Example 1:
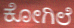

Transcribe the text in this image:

ಕೋಗಿಲೆ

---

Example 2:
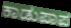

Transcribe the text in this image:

ಕಾಡುಪಾಪ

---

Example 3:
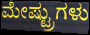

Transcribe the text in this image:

ಮೇಷ್ಟ್ರುಗಳು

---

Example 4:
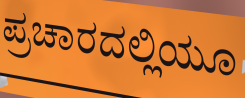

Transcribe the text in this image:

ಪ್ರಚಾರದಲ್ಲಿಯೂ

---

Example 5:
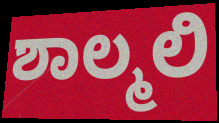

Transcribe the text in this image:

ಶಾಲ್ಮಲಿ